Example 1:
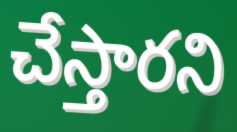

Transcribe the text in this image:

చేస్తారని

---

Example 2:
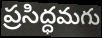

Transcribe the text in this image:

ప్రసిద్ధమగు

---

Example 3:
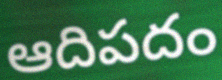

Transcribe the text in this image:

ఆదిపదం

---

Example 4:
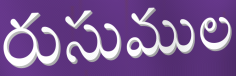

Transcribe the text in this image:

రుసుముల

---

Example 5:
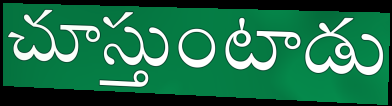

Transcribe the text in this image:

చూస్తుంటాడు